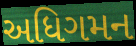
અધિગમન